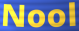
Nool